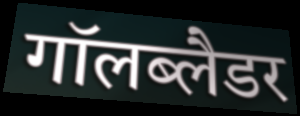
गॉलब्लैडर